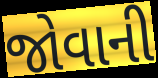
જોવાની